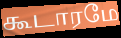
கூடாரமே